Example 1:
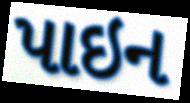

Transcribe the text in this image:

પાઇન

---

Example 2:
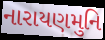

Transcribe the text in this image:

નારાયણમુનિ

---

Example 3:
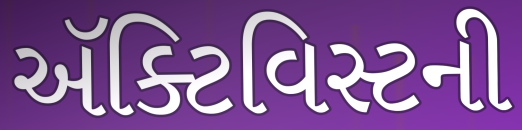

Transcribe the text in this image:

ઍક્ટિવિસ્ટની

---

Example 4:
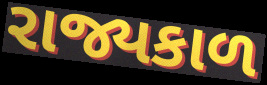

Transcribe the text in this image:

રાજ્યકાળ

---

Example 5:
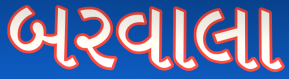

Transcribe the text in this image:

બરવાલા